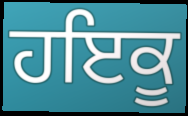
ਹਇਕੂ